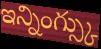
ఇన్నింగ్స్కు